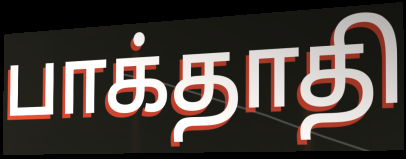
பாக்தாதி